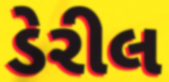
ડેરીલ